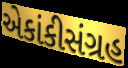
એકાંકીસંગ્રહ